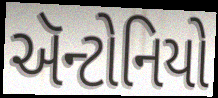
ઍન્ટોનિયો